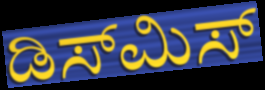
ಡಿಸ್‌ಮಿಸ್